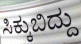
ಸಿಕ್ಕುಬಿದ್ದು